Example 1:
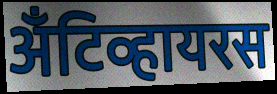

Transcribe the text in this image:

अँटिव्हायरस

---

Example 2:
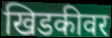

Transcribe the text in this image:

खिडकीवर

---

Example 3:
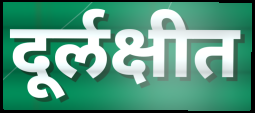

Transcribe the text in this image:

दूर्लक्षीत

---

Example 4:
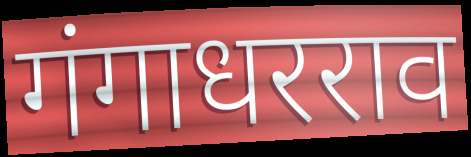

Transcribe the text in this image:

गंगाधरराव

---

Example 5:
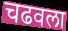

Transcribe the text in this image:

चढवला